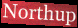
Northup